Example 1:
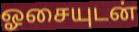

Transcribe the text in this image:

ஓசையுடன்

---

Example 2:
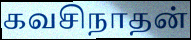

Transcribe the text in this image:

கவசிநாதன்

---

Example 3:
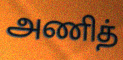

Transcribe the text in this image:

அணித்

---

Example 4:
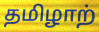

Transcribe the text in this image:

தமிழாற்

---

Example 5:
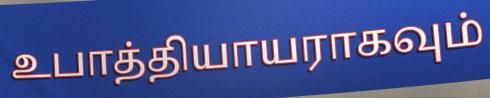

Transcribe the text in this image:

உபாத்தியாயராகவும்